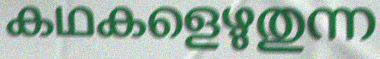
കഥകളെഴുതുന്ന